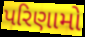
પરિણામો